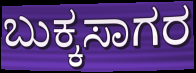
ಬುಕ್ಕಸಾಗರ